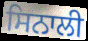
ਸਿਨਾਲੀ